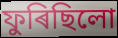
ফুৰিছিলো